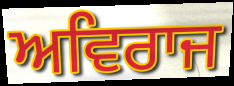
ਅਵਿਰਾਜ